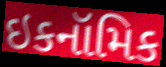
ઇકનૉમિક